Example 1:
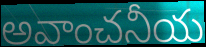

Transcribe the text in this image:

అవాంచనీయ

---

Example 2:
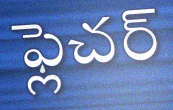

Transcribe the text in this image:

ఫ్లెచర్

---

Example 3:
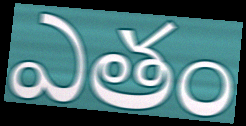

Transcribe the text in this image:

ఎతం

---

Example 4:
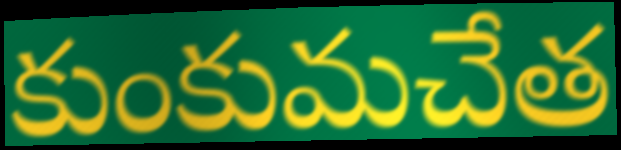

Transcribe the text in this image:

కుంకుమచేత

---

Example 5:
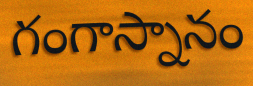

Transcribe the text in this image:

గంగాస్నానం